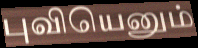
புவியெனும்